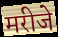
मरीजे